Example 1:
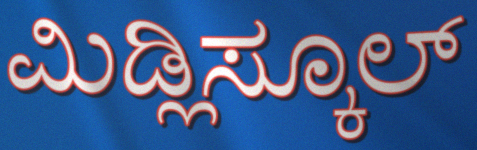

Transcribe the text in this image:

ಮಿಡ್ಲಿಸ್ಕೂಲ್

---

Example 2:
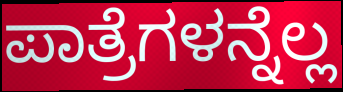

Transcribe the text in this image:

ಪಾತ್ರೆಗಳನ್ನೆಲ್ಲ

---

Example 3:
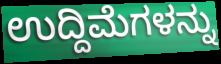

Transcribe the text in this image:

ಉದ್ದಿಮೆಗಳನ್ನು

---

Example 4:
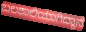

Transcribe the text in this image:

ಬಲಶಾಲಿಯಾಗಿದ್ದಾನೆ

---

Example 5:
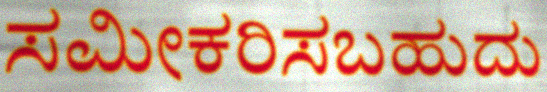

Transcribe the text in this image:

ಸಮೀಕರಿಸಬಹುದು